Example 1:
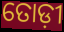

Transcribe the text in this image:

ତୋଡ଼ୀ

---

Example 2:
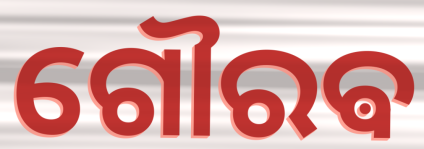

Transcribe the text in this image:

ଗୌରଵ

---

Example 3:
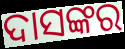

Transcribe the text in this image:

ଦାସଙ୍କର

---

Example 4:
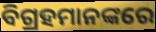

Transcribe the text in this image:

ବିଗ୍ରହମାନଙ୍କରେ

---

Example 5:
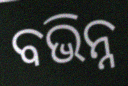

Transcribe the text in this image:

ବଭିନ୍ନ